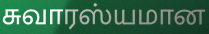
சுவாரஸ்யமான